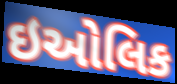
ઇઓલિક